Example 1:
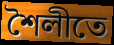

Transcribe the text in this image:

শৈলীতে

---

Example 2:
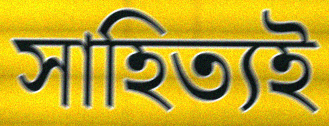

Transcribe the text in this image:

সাহিত্যই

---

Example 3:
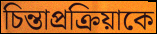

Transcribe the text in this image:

চিন্তাপ্রক্রিয়াকে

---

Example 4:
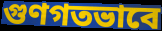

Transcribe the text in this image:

গুণগতভাবে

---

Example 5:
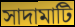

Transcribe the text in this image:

সাদামাটি